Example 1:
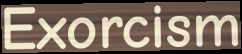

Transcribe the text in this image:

Exorcism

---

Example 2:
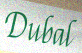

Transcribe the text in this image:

Dubal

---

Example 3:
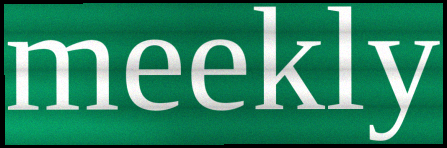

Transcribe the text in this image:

meekly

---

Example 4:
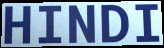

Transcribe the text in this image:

HINDI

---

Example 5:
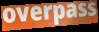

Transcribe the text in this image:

overpass